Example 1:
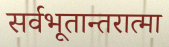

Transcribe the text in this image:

सर्वभूतान्तरात्मा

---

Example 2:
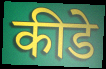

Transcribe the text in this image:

कीडे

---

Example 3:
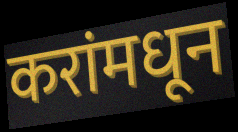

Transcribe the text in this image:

करांमधून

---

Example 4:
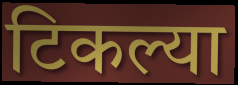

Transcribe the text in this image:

टिकल्या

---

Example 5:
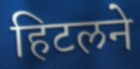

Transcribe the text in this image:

हिटलने